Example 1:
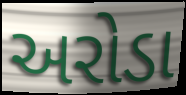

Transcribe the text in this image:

અરોડા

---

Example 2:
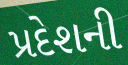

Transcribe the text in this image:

પ્રદેશની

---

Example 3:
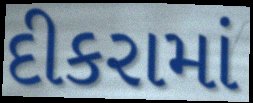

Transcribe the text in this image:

દીકરામાં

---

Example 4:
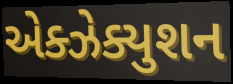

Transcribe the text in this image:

એક્ઝેક્યુશન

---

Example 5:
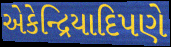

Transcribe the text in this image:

એકેન્દ્રિયાદિપણે